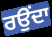
ਰਉਂਦਾ